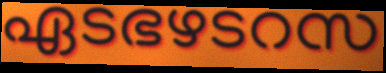
ഏടഭഴടറസ